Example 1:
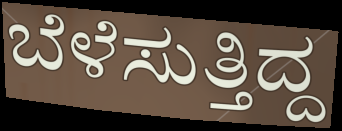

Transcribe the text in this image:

ಬೆಳೆಸುತ್ತಿದ್ದ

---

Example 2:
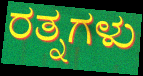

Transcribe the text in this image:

ರತ್ನಗಳು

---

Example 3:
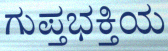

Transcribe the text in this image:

ಗುಪ್ತಭಕ್ತಿಯ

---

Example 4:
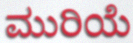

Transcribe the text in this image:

ಮುರಿಯೆ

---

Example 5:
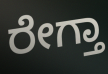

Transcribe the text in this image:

ರೇಗ್ತಾ